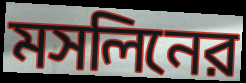
মসলিনের